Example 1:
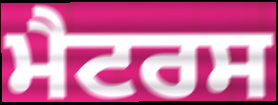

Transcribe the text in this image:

ਮੈਟਰਸ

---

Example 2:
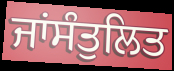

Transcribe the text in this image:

ਜਾਂਸੰਤੁਲਿਤ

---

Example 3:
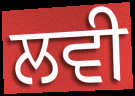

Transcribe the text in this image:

ਲਵੀ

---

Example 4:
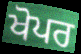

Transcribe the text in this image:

ਖੋਪਰ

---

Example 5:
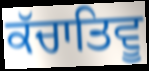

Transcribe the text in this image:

ਕੱਚਾਤਿਵੂ